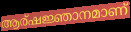
ആര്ഷജ്ഞാനമാണ്